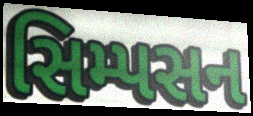
સિમ્પસન